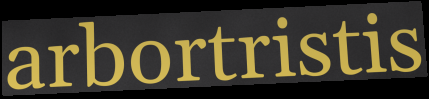
arbortristis